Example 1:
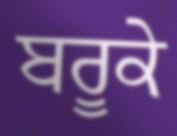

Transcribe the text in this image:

ਬਰੂਕੇ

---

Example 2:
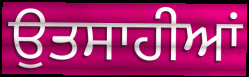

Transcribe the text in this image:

ਉਤਸਾਹੀਆਂ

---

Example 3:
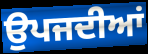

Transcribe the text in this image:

ਉਪਜਦੀਆਂ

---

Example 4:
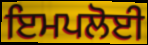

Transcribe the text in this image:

ਇਮਪਲੋਈ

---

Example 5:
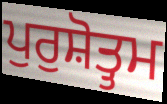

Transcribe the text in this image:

ਪੁਰੁਸ਼ੋਤ੍ਤਮ